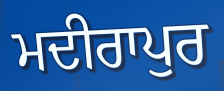
ਮਦੀਰਾਪੁਰ